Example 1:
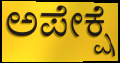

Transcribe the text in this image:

ಅಪೇಕ್ಷೆ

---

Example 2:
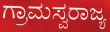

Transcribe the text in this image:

ಗ್ರಾಮಸ್ವರಾಜ್ಯ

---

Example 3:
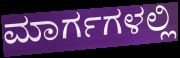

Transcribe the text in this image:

ಮಾರ್ಗಗಳಲ್ಲಿ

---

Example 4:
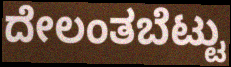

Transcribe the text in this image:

ದೇಲಂತಬೆಟ್ಟು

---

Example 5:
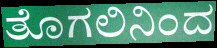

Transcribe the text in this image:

ತೊಗಲಿನಿಂದ